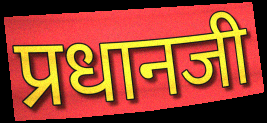
प्रधानजी